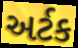
અર્ટક